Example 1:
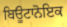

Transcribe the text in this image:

ਬਿਊਟਾਨੋਇਕ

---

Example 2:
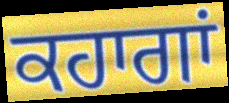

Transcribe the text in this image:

ਕਹਾਗਾਂ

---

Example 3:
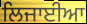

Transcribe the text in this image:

ਲਿਜਾਈਆ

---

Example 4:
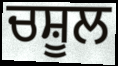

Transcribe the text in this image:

ਚਸ਼ੂਲ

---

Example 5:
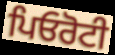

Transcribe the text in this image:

ਪਿਓਰੋਟੀ